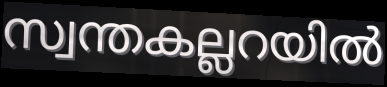
സ്വന്തകല്ലറയിൽ